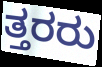
ತ್ತರರು